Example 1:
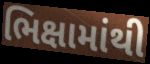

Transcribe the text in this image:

ભિક્ષામાંથી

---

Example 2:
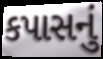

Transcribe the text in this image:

કપાસનું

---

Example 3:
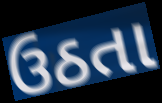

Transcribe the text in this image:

ઉઠતા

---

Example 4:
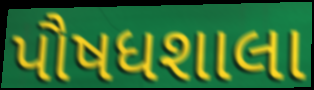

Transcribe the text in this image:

પૌષધશાલા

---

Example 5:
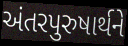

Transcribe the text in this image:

અંતરપુરુષાર્થને